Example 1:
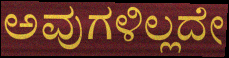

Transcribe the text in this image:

ಅವುಗಳಿಲ್ಲದೇ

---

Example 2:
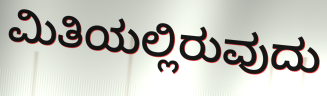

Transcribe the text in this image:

ಮಿತಿಯಲ್ಲಿರುವುದು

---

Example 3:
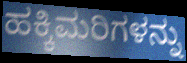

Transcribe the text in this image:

ಹಕ್ಕಿಮರಿಗಳನ್ನು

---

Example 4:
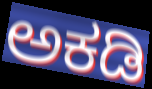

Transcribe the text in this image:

ಅಕಡಿ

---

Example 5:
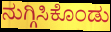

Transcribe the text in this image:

ನುಗ್ಗಿಸಿಕೊಂಡು